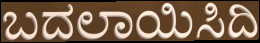
ಬದಲಾಯಿಸಿದಿ